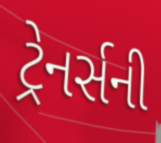
ટ્રેનર્સની